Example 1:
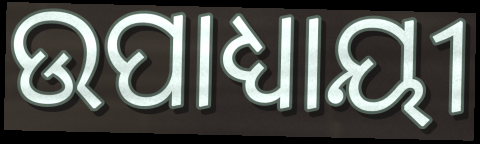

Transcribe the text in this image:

ଉପାଧ୍ୟାୟୀ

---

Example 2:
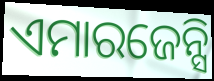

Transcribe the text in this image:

ଏମାରଜେନ୍ସି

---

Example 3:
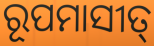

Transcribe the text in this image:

ରୂପମାସୀତ୍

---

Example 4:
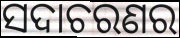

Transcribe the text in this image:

ସଦାଚରଣର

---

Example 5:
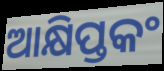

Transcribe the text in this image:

ଆକ୍ଷିପ୍ତକଂ